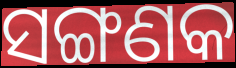
ସଙ୍ଗଣକ